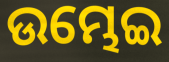
ଉମ୍ଭେଇ